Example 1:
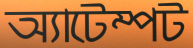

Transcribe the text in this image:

অ্যাটেম্পট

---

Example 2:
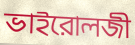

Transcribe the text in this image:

ভাইরোলজী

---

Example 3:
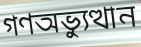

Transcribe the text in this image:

গণঅভ্যুত্থান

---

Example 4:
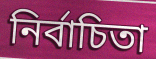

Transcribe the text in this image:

নির্বাচিতা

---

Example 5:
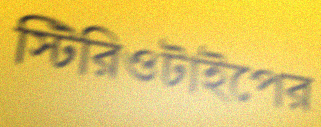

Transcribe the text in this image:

স্টিরিওটাইপের